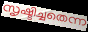
സൃഷ്ടിച്ചതെന്ന